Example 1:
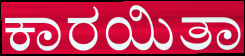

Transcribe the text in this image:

ಕಾರಯಿತಾ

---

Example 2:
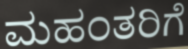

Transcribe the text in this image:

ಮಹಂತರಿಗೆ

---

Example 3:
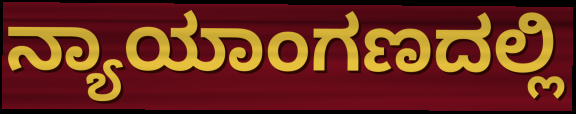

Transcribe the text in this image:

ನ್ಯಾಯಾಂಗಣದಲ್ಲಿ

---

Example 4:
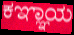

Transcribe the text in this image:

ಕಞ್ಞಾಯ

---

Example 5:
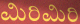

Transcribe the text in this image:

ಮಿರಿಮಿರಿ